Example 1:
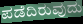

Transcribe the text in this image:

ಪಡೆದಿರುವುದು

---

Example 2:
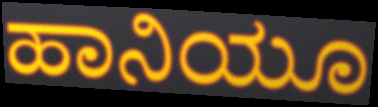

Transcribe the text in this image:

ಹಾನಿಯೂ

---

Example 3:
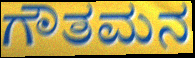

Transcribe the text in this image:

ಗೌತಮನ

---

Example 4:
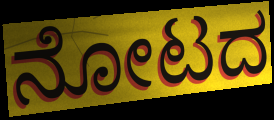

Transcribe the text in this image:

ನೋಟದ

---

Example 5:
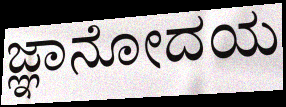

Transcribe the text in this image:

ಜ್ಞಾನೋದಯ